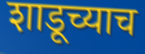
शाडूच्याच